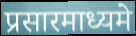
प्रसारमाध्यमे